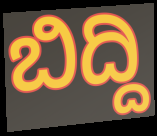
ಬಿದ್ದಿ